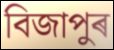
বিজাপুৰ